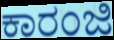
ಕಾರಂಜಿ